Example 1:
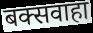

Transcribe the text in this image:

बक्सवाहा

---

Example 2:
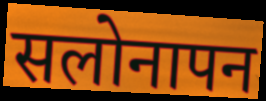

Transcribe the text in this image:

सलोनापन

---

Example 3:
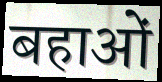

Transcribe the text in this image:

बहाओं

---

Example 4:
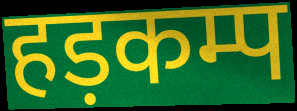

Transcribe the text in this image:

हड़कम्‍प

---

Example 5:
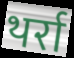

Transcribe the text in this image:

थर्रा